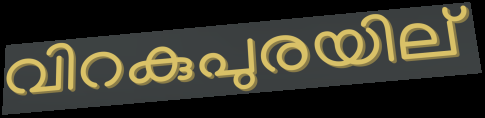
വിറകുപുരയില്